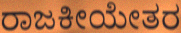
ರಾಜಕೀಯೇತರ